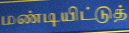
மண்டியிட்டுத்